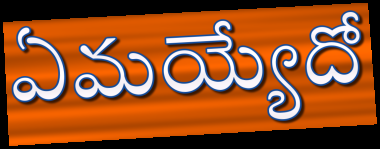
ఏమయ్యేదో